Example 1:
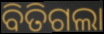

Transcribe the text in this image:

ବିତିଗଲା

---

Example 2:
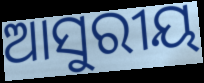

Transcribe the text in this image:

ଆସୁରୀୟ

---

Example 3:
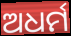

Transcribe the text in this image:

ଅଧର୍ମ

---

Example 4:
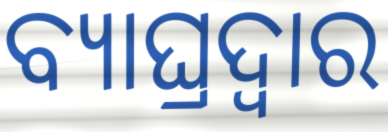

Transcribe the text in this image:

ବ୍ୟାଘ୍ରଦ୍ଵାର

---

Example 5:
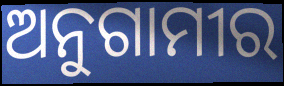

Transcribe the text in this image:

ଅନୁଗାମୀର